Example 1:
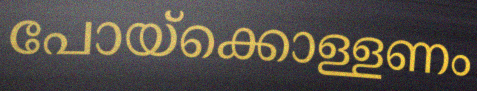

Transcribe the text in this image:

പോയ്ക്കൊള്ളണം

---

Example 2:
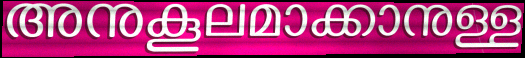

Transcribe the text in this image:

അനുകൂലമാക്കാനുള്ള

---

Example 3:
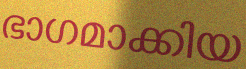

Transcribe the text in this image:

ഭാഗമാക്കിയ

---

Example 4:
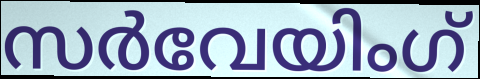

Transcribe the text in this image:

സർവേയിംഗ്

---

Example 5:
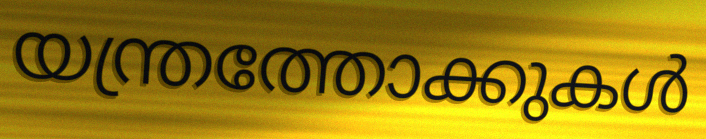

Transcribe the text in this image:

യന്ത്രത്തോക്കുകൾ